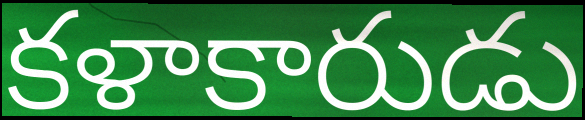
కళాకారుడు